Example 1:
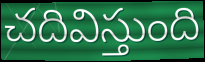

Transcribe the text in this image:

చదివిస్తుంది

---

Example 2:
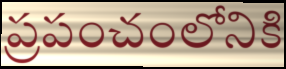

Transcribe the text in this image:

ప్రపంచంలోనికి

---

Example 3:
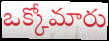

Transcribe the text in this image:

ఒక్కోమారు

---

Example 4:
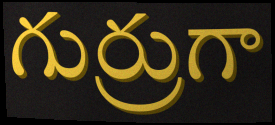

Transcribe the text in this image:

గుర్రుగా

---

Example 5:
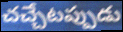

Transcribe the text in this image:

చచ్చేటప్పుడు